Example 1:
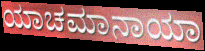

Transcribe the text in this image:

ಯಾಚಮಾನಾಯಾ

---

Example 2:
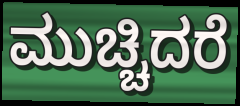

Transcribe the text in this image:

ಮುಚ್ಚಿದರೆ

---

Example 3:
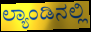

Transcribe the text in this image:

ಲ್ಯಾಂಡಿನಲ್ಲಿ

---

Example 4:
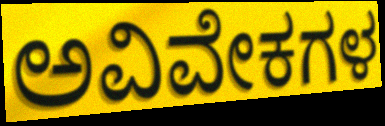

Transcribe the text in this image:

ಅವಿವೇಕಗಳ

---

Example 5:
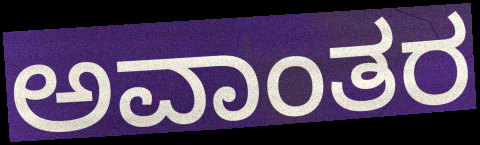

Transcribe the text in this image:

ಅವಾಂತರ